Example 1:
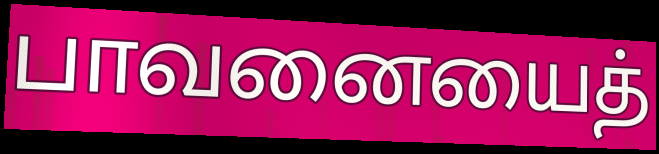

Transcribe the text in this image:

பாவனையைத்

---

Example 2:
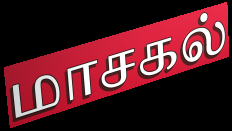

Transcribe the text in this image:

மாசகல்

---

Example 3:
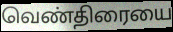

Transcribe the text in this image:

வெண்திரையை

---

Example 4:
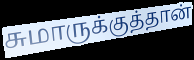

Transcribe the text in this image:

சுமாருக்குத்தான்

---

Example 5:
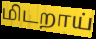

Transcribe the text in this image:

மிடறாய்